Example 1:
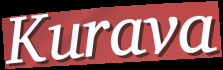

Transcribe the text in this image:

Kurava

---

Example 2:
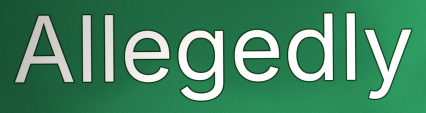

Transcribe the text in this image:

Allegedly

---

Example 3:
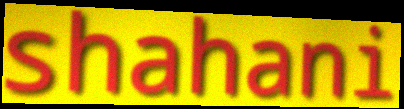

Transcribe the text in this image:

shahani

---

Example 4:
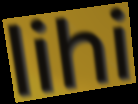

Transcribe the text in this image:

lihi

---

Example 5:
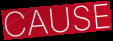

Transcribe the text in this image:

CAUSE